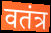
वतंत्र